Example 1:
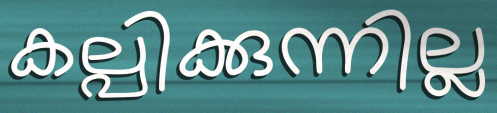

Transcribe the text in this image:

കല്പിക്കുന്നില്ല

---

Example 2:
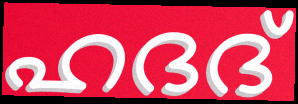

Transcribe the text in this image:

ഹദദ്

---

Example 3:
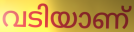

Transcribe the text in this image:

വടിയാണ്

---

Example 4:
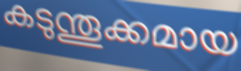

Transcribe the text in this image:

കടുന്തൂക്കമായ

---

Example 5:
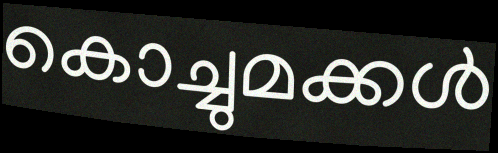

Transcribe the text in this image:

കൊച്ചുമക്കൾ